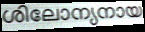
ശിലോന്യനായ